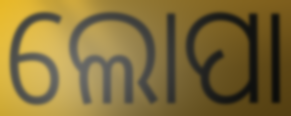
ଲୋପା